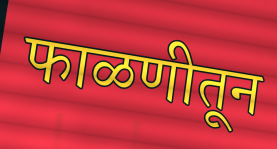
फाळणीतून